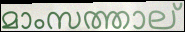
മാംസത്താല്